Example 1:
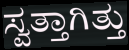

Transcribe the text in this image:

ಸ್ವತ್ತಾಗಿತ್ತು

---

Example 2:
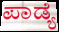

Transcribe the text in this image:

ಪಾಡ್ಯೆ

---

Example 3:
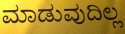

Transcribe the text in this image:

ಮಾಡುವುದಿಲ್ಲ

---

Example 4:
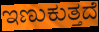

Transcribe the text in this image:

ಇಣುಕುತ್ತದೆ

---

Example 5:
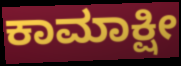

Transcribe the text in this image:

ಕಾಮಾಕ್ಷೀ